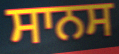
ਸਾਨਸ